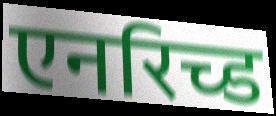
एनरिच्ड